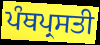
ਪੰਥਪ੍ਰਸਤੀ